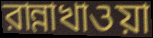
রান্নাখাওয়া